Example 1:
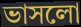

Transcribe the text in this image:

ভাসলো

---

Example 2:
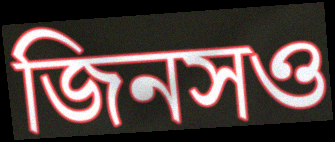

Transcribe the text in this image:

জিনসও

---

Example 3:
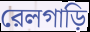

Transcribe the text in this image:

রেলগাড়ি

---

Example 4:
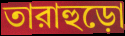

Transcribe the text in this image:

তারাহুড়ো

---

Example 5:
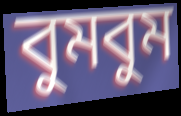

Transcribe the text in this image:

বুমবুম